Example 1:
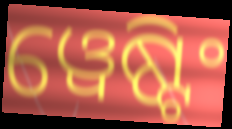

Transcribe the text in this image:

ୱେଷ୍ଟିଂ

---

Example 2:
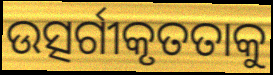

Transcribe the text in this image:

ଉତ୍ସର୍ଗୀକୃତତାକୁ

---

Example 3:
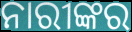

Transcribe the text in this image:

ନାରୀଙ୍କର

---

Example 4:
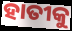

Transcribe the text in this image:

ହାତୀକୁ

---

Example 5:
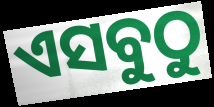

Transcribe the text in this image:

ଏସବୁଠୁ